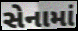
સેનામાં